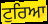
ਟੁਰਿਆ